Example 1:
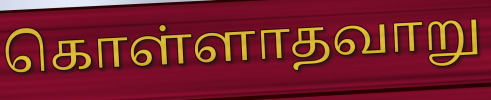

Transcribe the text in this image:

கொள்ளாதவாறு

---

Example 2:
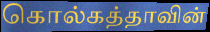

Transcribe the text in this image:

கொல்கத்தாவின்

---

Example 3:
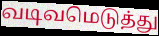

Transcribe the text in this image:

வடிவமெடுத்து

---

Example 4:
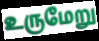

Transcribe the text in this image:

உருமேறு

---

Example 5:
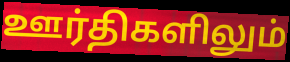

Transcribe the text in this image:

ஊர்திகளிலும்